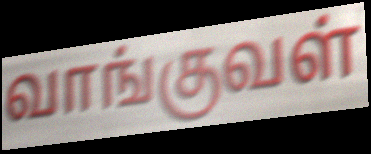
வாங்குவள்